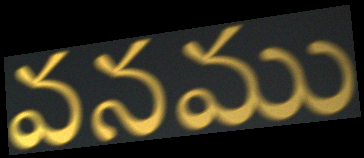
వనము